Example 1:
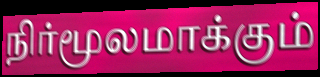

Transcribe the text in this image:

நிர்மூலமாக்கும்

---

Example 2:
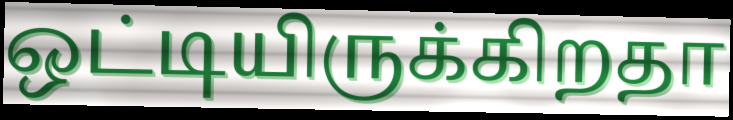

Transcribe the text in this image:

ஒட்டியிருக்கிறதா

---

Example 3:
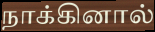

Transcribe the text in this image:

நாக்கினால்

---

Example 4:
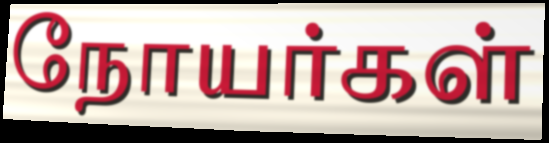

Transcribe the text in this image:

நோயர்கள்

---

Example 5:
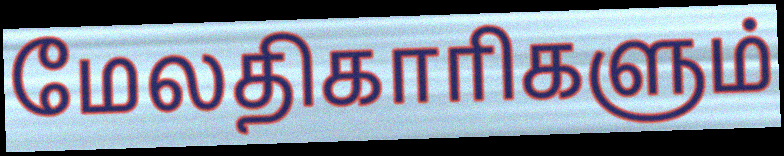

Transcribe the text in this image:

மேலதிகாரிகளும்